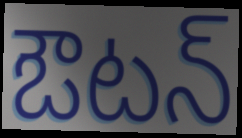
ఔటన్